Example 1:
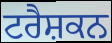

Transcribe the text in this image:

ਟਰੈਸ਼ਕਨ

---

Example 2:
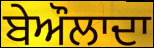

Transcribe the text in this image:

ਬੇਔਲਾਦਾ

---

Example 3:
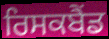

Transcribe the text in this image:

ਰਿਸਕਬੈਂਡ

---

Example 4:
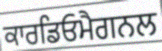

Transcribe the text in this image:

ਕਾਰਡਿਓਮੈਗਨਲ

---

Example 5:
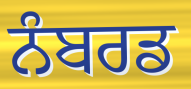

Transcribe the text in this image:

ਨੰਬਰਡ